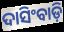
ଦାସିଂବାଡ଼ି